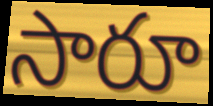
సారూ